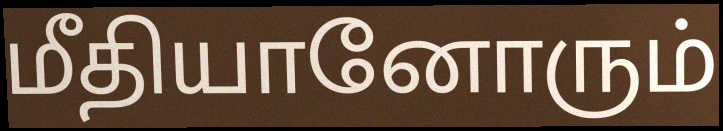
மீதியானோரும்